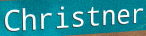
Christner